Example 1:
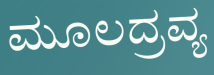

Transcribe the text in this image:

ಮೂಲದ್ರವ್ಯ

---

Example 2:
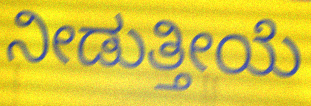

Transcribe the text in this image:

ನೀಡುತ್ತೀಯೆ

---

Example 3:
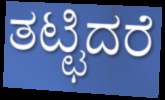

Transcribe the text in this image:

ತಟ್ಟಿದರೆ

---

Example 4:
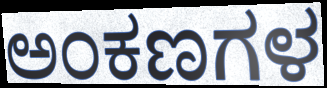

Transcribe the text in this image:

ಅಂಕಣಗಳ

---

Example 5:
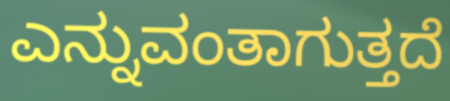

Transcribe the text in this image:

ಎನ್ನುವಂತಾಗುತ್ತದೆ